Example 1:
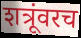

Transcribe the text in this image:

शत्रूंवरच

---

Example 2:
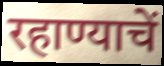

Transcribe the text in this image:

रहाण्याचें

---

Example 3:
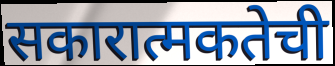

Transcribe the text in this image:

सकारात्मकतेची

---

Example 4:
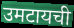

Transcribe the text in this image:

उमटायची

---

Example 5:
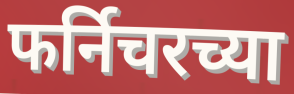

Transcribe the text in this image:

फर्निचरच्या